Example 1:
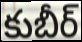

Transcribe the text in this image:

కుబీర్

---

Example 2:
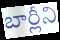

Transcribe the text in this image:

బార్లీని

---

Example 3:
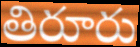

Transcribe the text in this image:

తిరూరు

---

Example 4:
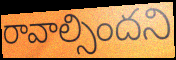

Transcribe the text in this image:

రావాల్సిందని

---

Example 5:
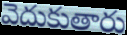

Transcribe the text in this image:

వెదుకుతారు